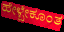
ಹೇಳ್ಬೇಕೂಂತ